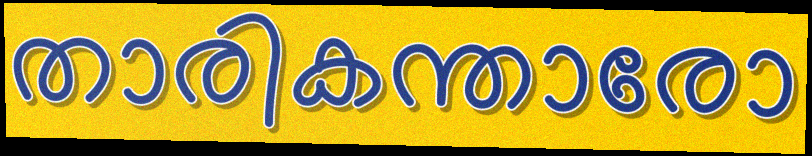
താരികന്താരോ